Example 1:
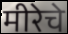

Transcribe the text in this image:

मीरेचे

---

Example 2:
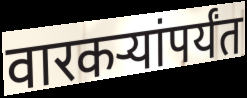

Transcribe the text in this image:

वारकऱ्यांपर्यंत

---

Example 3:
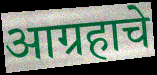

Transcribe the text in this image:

आग्रहाचे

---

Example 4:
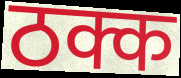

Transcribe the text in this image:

ठक्क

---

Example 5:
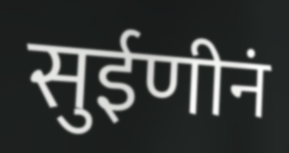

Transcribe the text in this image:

सुईणीनं